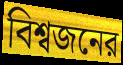
বিশ্বজনের